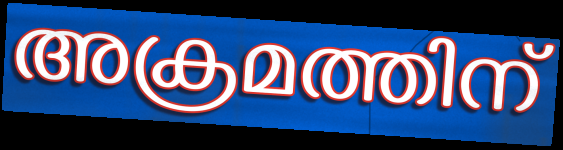
അക്രമത്തിന്